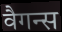
वैगन्स